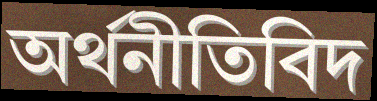
অর্থনীতিবিদ